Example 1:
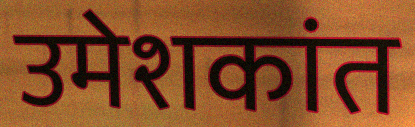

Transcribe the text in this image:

उमेशकांत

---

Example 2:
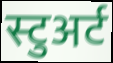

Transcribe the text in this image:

स्टुअर्ट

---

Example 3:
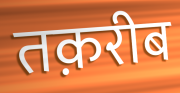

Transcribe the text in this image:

तक़रीब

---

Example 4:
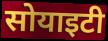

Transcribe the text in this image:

सोयाइटी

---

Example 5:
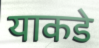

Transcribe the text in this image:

याकडे